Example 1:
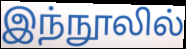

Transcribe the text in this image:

இந்நூலில்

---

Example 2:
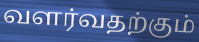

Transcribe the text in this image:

வளர்வதற்கும்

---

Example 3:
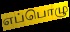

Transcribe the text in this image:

எப்பொழு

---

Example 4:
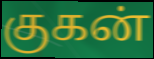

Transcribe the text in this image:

குகன்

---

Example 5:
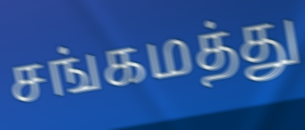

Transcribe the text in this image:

சங்கமத்து